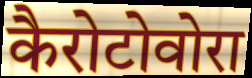
कैरोटोवोरा